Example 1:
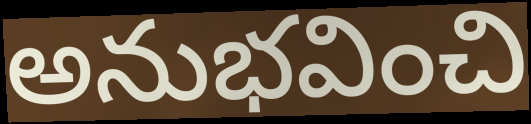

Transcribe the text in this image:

అనుభవించి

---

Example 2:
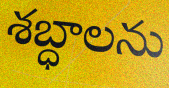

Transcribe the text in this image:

శబ్ధాలను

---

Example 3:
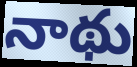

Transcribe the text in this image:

నాథు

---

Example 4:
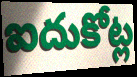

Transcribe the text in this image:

ఐదుకోట్ల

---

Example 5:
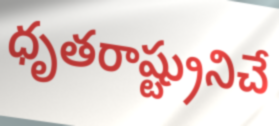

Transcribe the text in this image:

ధృతరాష్ట్రునిచే